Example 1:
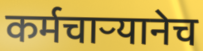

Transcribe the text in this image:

कर्मचाऱ्यानेच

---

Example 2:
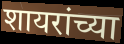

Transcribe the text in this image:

शायरांच्या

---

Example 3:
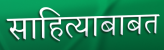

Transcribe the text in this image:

साहित्याबाबत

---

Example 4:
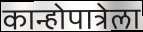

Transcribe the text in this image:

कान्होपात्रेला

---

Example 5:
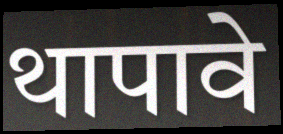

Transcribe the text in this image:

थापावे